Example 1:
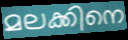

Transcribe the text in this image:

മലക്കിനെ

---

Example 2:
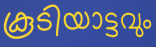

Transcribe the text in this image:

കൂടിയാട്ടവും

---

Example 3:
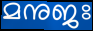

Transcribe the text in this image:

മനുജഃ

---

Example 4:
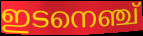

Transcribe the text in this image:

ഇടനെഞ്ച്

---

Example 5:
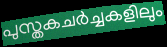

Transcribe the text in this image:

പുസ്തകചർച്ചകളിലും